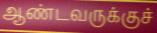
ஆண்டவருக்குச்